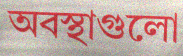
অবস্থাগুলো